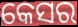
କେସର